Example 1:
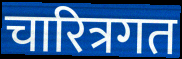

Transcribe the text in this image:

चारित्रगत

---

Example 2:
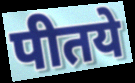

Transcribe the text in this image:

पीतये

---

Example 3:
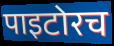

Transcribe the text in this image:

पाइटोरच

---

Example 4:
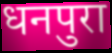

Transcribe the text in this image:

धनपुरा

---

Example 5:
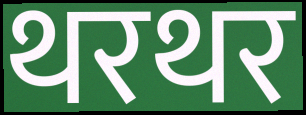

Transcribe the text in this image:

थरथर